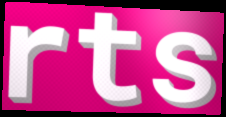
rts